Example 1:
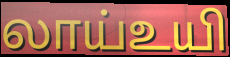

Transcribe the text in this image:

லாய்உயி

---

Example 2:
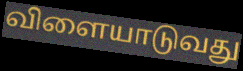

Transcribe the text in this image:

விளையாடுவது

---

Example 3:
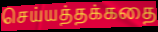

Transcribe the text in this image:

செய்யத்தக்கதை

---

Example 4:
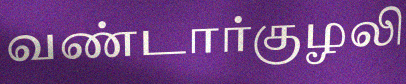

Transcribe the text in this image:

வண்டார்குழலி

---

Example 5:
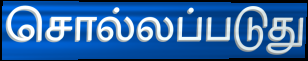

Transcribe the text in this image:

சொல்லப்படுது